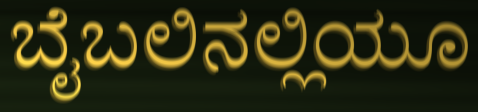
ಬೈಬಲಿನಲ್ಲಿಯೂ